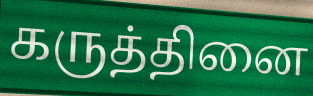
கருத்தினை